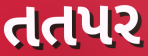
તતપર